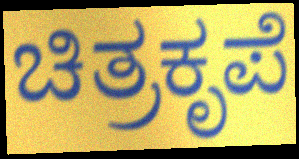
ಚಿತ್ರಕೃಪೆ